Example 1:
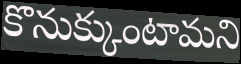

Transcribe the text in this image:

కొనుక్కుంటామని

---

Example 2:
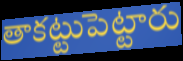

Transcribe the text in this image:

తాకట్టుపెట్టారు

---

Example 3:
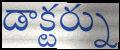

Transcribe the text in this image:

డాక్టర్ను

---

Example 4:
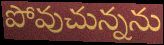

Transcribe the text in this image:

పోవుచున్నను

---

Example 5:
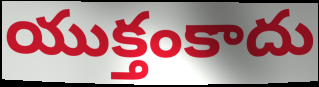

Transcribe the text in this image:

యుక్తంకాదు